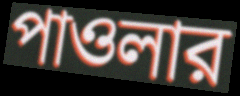
পাওলার